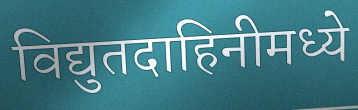
विद्युतदाहिनीमध्ये